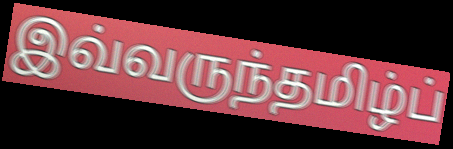
இவ்வருந்தமிழ்ப்